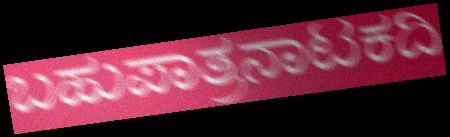
ಬಹುಪಾತ್ರನಾಟಕದಿ